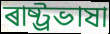
ৰাষ্ট্ৰভাষা